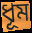
ধূম